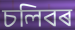
চলিবৰ